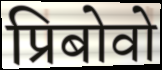
प्रिबोवो